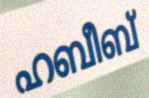
ഹബീബ്